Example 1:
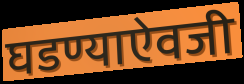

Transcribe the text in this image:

घडण्याऐवजी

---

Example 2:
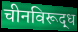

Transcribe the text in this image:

चीनविरूद्ध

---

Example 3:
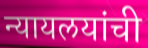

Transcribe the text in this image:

न्यायलयांची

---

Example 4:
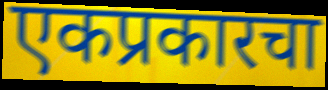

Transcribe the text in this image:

एकप्रकारचा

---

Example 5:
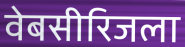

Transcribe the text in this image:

वेबसीरिजला